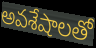
అవశేషాలతో